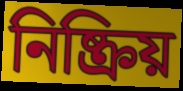
নিষ্ক্রিয়